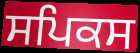
ਸਪਿਕਸ